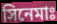
সিনেমাঃ